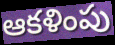
ఆకళింపు